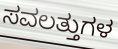
ಸವಲತ್ತುಗಳ